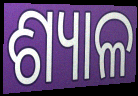
ଶ୍ୟାଳ